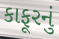
કાફૂરનું